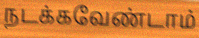
நடக்கவேண்டாம்